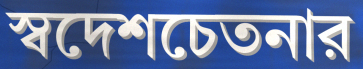
স্বদেশচেতনার